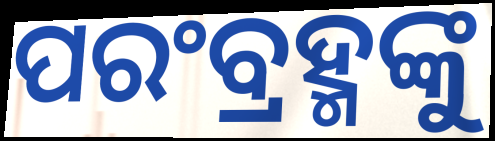
ପରଂବ୍ରହ୍ମଙ୍କୁ